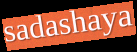
sadashaya